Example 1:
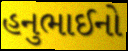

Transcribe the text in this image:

હનુભાઈનો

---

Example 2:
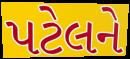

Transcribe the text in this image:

પટેલને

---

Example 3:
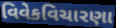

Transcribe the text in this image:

વિવેકવિચારણા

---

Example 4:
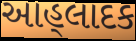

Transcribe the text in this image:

આહ્‌લાદક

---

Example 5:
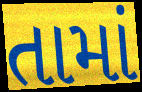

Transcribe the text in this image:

તામાં